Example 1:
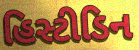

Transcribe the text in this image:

હિસ્ટીડિન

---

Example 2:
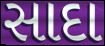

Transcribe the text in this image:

સાદા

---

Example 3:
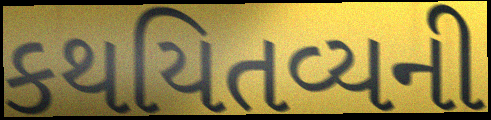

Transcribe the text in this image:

કથયિતવ્યની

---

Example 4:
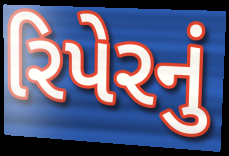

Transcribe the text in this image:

રિપેરનું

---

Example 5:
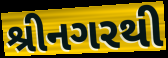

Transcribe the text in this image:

શ્રીનગરથી